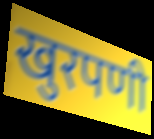
खुरपणी